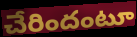
చేరిందంటూ